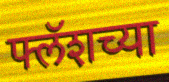
फ्लॅशच्या